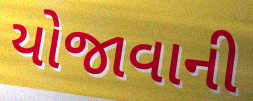
યોજાવાની